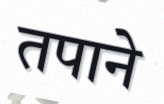
तपाने